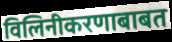
विलिनीकरणाबाबत